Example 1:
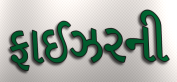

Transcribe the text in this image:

ફાઈઝરની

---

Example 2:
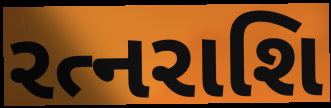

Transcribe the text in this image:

રત્નરાશિ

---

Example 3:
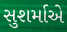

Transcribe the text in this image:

સુશર્માએ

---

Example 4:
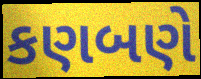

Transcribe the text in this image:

કણબણે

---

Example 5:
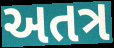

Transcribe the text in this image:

અતત્ર